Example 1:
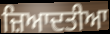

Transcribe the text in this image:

ਜ਼ਿਆਦਤੀਆ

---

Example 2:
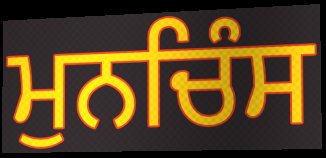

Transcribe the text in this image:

ਮੁਨਚਿੰਸ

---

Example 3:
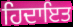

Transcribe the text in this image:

ਹਿਦਾਇਤ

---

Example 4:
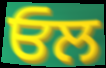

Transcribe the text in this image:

ਓਲ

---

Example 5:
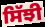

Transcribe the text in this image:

ਸਿੱਝੀ